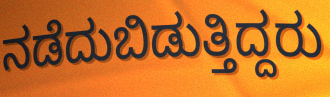
ನಡೆದುಬಿಡುತ್ತಿದ್ದರು